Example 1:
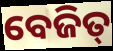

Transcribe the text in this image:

ବେଜିତ୍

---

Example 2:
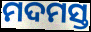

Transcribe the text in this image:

ମଦମସ୍ତ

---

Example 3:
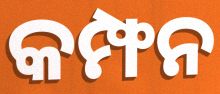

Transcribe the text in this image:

କମ୍ଫନ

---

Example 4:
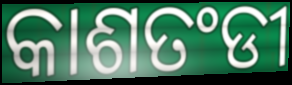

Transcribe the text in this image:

କାଶତଂଡୀ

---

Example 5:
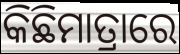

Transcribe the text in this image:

କିଛିମାତ୍ରାରେ